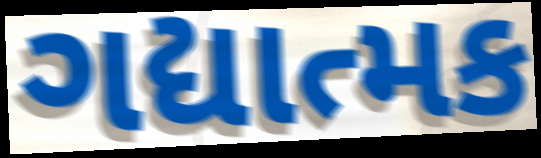
ગદ્યાત્મક